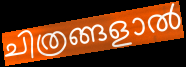
ചിത്രങ്ങളാൽ